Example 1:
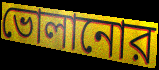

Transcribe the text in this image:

ভোলানোর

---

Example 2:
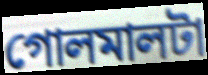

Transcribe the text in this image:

গোলমালটা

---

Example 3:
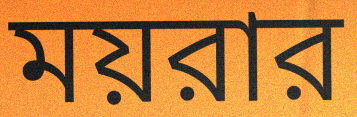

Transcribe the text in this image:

ময়রার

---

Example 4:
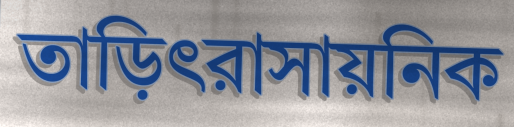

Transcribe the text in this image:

তাড়িৎরাসায়নিক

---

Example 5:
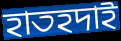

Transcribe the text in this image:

হাতহদাই